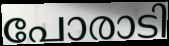
പോരാടി